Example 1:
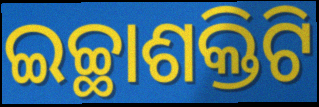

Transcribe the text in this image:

ଇଚ୍ଛାଶକ୍ତିଟି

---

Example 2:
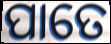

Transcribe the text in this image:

ପାତେ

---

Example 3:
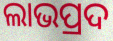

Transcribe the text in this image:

ଲାଭପ୍ରଦ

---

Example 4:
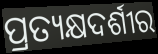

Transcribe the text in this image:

ପ୍ରତ୍ୟକ୍ଷଦର୍ଶୀର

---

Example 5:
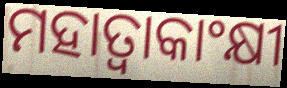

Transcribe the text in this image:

ମହାତ୍ୱାକାଂକ୍ଷୀ